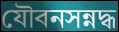
যৌবনসন্নদ্ধ